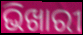
ଭିଖାରୀ